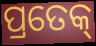
ପ୍ରତେକ୍